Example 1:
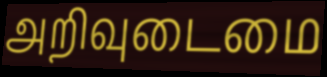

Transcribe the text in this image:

அறிவுடைமை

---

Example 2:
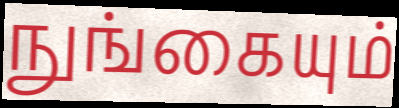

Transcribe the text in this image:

நுங்கையும்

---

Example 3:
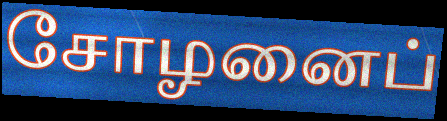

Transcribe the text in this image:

சோழனைப்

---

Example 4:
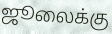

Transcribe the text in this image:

ஜூலைக்கு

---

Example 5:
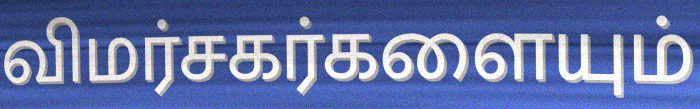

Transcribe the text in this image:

விமர்சகர்களையும்